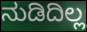
ನುಡಿದಿಲ್ಲ